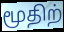
மூதிற்